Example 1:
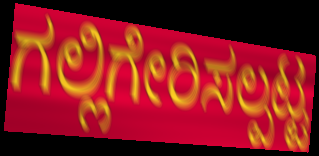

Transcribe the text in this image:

ಗಲ್ಲಿಗೇರಿಸಲ್ಪಟ್ಟ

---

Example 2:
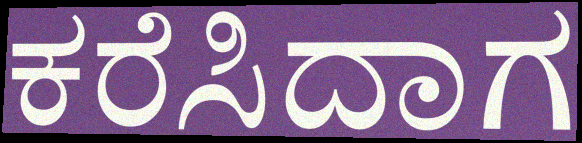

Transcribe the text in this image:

ಕರೆಸಿದಾಗ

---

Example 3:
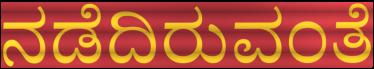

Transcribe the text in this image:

ನಡೆದಿರುವಂತೆ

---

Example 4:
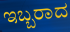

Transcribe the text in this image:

ಇಬ್ಬರಾದ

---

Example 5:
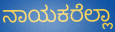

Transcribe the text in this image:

ನಾಯಕರೆಲ್ಲಾ